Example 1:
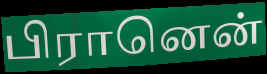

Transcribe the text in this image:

பிரானென்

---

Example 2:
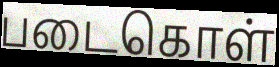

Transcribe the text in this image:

படைகொள்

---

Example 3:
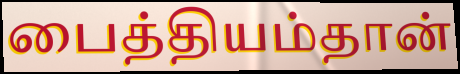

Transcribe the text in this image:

பைத்தியம்தான்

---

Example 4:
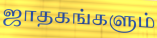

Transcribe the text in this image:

ஜாதகங்களும்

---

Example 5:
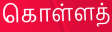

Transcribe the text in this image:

கொள்ளத்